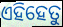
ଏହିହେତୁ